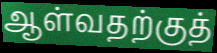
ஆள்வதற்குத்